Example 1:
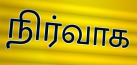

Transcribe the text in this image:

நிர்வாக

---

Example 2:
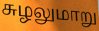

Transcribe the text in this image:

சுழலுமாறு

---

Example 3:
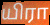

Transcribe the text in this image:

யிரா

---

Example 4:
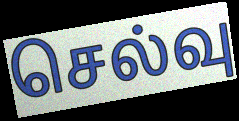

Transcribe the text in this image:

செல்வு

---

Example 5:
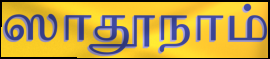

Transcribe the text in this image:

ஸாதூநாம்